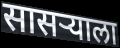
सासर्‍याला